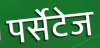
पर्सेटेज